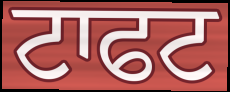
ਟਾਫਟ